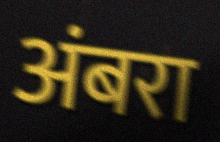
अंबरा